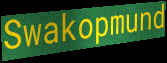
Swakopmund